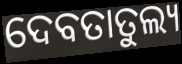
ଦେବତାତୁଲ୍ୟ